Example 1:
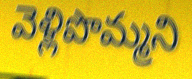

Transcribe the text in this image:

వెళ్లిపొమ్మని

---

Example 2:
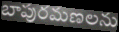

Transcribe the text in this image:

బాపురమణలను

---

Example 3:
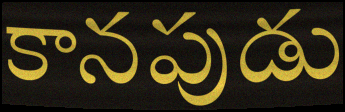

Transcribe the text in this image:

కానపుడు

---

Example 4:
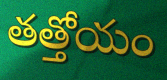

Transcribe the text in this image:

తత్తోయం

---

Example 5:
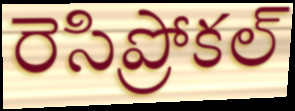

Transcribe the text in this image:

రెసిప్రోకల్